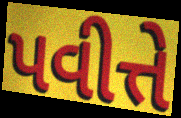
પવીત્તે